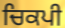
ਚਿਕਪੀ